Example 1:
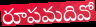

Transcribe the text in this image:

రూపమదివో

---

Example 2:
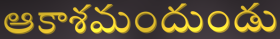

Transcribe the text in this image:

ఆకాశమందుండు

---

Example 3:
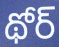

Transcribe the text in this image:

థోర్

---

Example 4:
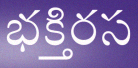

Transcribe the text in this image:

భక్తిరస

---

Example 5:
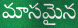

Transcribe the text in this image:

మాసమైన